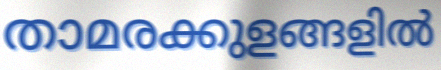
താമരക്കുളങ്ങളിൽ